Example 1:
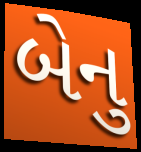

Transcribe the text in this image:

બેનુ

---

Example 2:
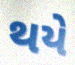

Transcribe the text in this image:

થયે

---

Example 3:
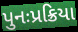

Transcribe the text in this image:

પુનઃપ્રક્રિયા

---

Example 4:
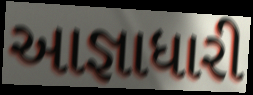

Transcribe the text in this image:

આજ્ઞાધારી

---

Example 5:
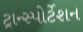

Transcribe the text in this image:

ટ્રાન્સ્પોર્ટેશન